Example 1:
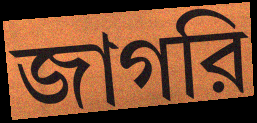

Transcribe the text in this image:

জাগরি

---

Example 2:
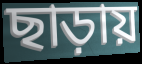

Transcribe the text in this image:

ছাড়ায়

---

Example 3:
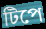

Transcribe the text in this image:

টিপে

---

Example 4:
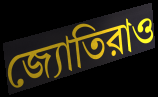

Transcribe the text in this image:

জ্যোতিরাও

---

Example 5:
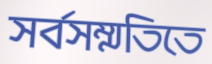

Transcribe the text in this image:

সর্বসম্মতিতে